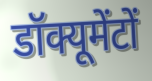
डॉक्यूमेंटों